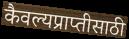
कैवल्यप्राप्तीसाठी